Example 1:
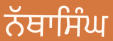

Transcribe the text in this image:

ਨੱਥਾਸਿੰਘ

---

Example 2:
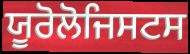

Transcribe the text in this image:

ਯੂਰੋਲੋਜਿਸਟਸ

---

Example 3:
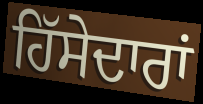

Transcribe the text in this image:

ਹਿੱਸੇਦਾਰਾਂ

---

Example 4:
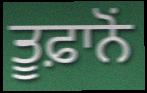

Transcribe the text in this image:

ਤੂਫ਼ਾਨੋਂ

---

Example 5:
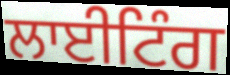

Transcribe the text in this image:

ਲਾਈਟਿੰਗ